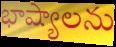
భాష్యాలను